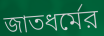
জাতধর্মের